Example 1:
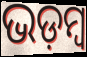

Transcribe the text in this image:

ଭଡ଼ମ୍ବ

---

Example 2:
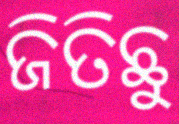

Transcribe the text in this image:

ଜିତିଛୁ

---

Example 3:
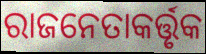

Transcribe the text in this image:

ରାଜନେତାକର୍ତ୍ତୃକ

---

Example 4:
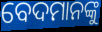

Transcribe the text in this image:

ବେଦମାନଙ୍କୁ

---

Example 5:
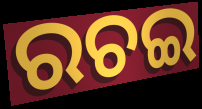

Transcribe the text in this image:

ରଚଇ